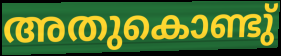
അതുകൊണ്ടു്